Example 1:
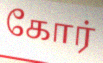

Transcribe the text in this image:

கோர்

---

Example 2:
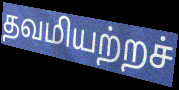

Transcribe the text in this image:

தவமியற்றச்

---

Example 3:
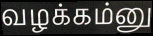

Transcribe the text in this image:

வழக்கம்னு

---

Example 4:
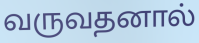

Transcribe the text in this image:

வருவதனால்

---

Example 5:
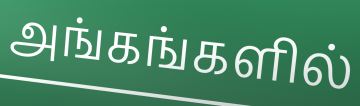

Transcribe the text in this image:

அங்கங்களில்